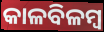
କାଳବିଳମ୍ବ